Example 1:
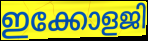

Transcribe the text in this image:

ഇക്കോളജി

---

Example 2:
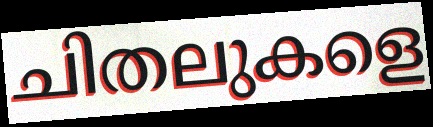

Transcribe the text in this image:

ചിതലുകളെ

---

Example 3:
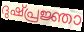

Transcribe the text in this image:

ദുഷ്പ്രജ്ഞാ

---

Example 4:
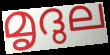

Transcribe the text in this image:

മൃദുല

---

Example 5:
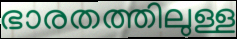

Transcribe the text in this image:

ഭാരതത്തിലുള്ള